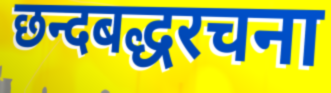
छन्दबद्धरचना